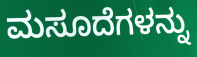
ಮಸೂದೆಗಳನ್ನು